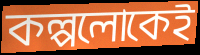
কল্পলোকেই